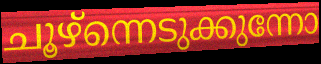
ചൂഴ്ന്നെടുക്കുന്നോ